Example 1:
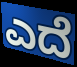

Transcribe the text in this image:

ಎದೆ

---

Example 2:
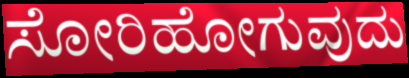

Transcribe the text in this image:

ಸೋರಿಹೋಗುವುದು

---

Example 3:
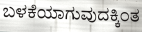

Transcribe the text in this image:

ಬಳಕೆಯಾಗುವುದಕ್ಕಿಂತ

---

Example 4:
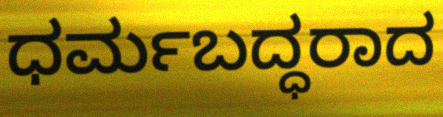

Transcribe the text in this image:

ಧರ್ಮಬದ್ಧರಾದ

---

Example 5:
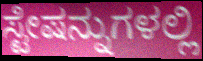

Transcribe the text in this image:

ಸ್ಟೇಷನ್ನುಗಳಲ್ಲಿ